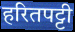
हरितपट्टी